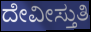
ದೇವೀಸ್ತುತಿ